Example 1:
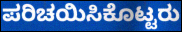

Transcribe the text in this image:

ಪರಿಚಯಿಸಿಕೊಟ್ಟರು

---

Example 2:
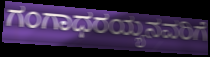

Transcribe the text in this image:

ಗಂಗಾಧರಯ್ಯನವರಿಗೆ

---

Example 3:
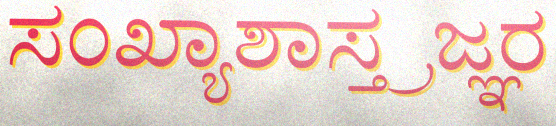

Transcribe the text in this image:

ಸಂಖ್ಯಾಶಾಸ್ತ್ರಜ್ಞರ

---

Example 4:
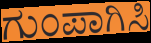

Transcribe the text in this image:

ಗುಂಪಾಗಿಸಿ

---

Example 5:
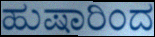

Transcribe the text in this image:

ಹುಷಾರಿಂದ